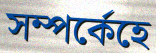
সম্পৰ্কেহে